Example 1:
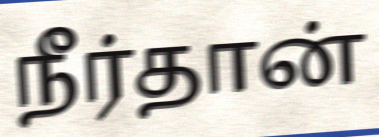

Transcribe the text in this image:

நீர்தான்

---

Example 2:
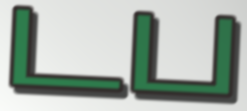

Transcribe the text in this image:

டப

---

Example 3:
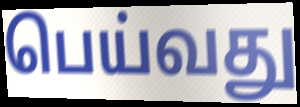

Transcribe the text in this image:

பெய்வது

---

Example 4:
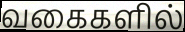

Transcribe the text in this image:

வகைகளில்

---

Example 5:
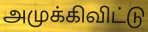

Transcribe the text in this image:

அமுக்கிவிட்டு